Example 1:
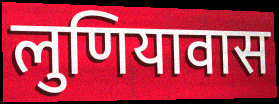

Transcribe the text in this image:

लुणियावास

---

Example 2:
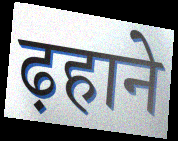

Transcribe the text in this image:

ढ़हाने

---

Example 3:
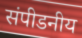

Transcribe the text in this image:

संपीडनीय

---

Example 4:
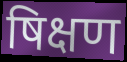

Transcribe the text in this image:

षिक्षण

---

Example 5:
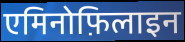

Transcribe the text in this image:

एमिनोफ़िलाइन